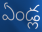
ఏండ్ల